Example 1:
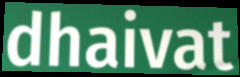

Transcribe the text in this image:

dhaivat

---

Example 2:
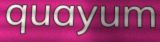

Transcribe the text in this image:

quayum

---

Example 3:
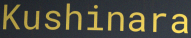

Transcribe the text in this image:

Kushinara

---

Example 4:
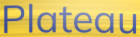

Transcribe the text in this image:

Plateau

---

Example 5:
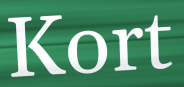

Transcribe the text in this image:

Kort